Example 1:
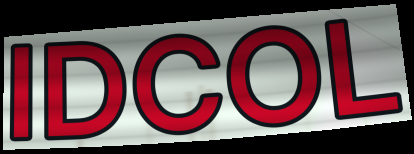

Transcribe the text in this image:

IDCOL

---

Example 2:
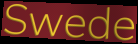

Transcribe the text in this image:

Swede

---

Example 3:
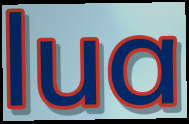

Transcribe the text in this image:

lua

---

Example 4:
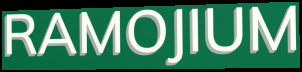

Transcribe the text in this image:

RAMOJIUM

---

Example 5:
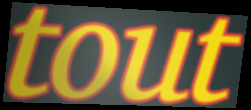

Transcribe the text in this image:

tout